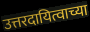
उत्तरदायित्वाच्या